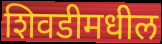
शिवडीमधील